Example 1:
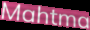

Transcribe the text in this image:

Mahtma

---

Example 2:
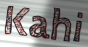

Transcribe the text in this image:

Kahi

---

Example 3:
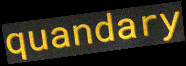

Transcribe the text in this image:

quandary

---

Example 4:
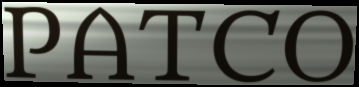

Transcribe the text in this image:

PATCO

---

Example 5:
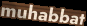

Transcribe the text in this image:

muhabbat